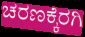
ಚರಣಕ್ಕೆರಗಿ